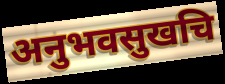
अनुभवसुखचि